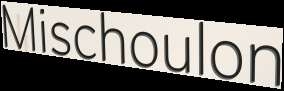
Mischoulon